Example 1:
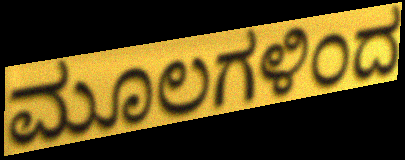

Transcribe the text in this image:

ಮೂಲಗಳಿಂದ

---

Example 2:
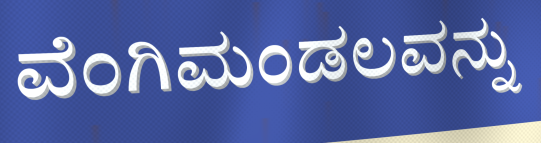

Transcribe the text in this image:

ವೆಂಗಿಮಂಡಲವನ್ನು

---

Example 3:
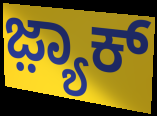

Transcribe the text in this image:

ಜ಼್ಯಾಕ್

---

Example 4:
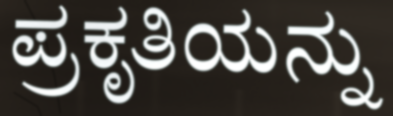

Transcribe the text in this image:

ಪ್ರಕೃತಿಯನ್ನು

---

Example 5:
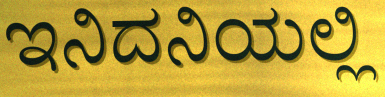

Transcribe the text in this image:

ಇನಿದನಿಯಲ್ಲಿ